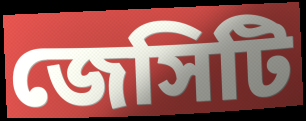
জেসিটি